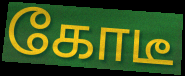
கோடீ